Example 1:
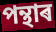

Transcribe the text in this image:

পন্থাৰ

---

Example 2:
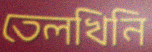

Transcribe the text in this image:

তেলখিনি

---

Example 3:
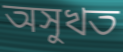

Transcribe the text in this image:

অসুখত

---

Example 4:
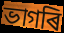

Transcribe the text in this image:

ভাগৰি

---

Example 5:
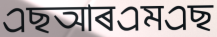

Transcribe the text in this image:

এছআৰএমএছ